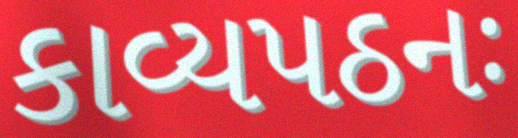
કાવ્યપઠનઃ